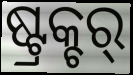
ଷ୍ଟ୍ରକ୍ଚର୍